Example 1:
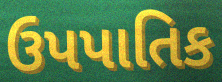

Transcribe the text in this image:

ઉપપાતિક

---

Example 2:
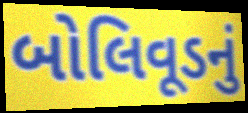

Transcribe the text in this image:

બોલિવૂડનું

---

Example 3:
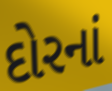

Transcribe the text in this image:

દોરનાં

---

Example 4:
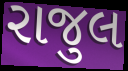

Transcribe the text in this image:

રાજુલ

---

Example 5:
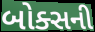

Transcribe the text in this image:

બોક્સની